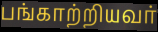
பங்காற்றியவர்